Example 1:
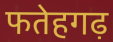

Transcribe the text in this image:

फतेहगढ़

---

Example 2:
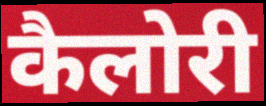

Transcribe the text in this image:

कैलोरी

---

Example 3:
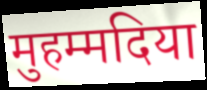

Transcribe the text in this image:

मुहम्मदिया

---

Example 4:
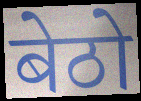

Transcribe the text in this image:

बेठो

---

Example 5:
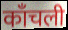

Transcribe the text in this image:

काँचली